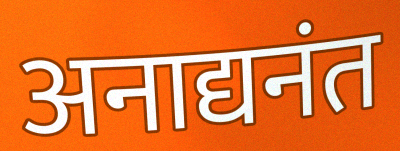
अनाद्यनंत